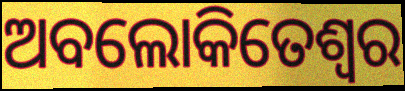
ଅବଲୋକିତେଶ୍ୱର